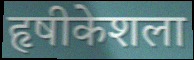
हृषीकेशला